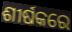
ଶୀର୍ଷକରେ